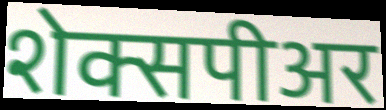
शेक्सपीअर